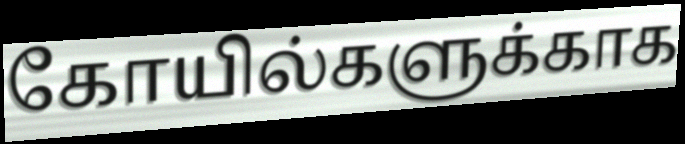
கோயில்களுக்காக